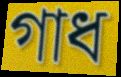
গাধ